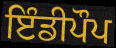
ਇੰਡੀਪੌਪ